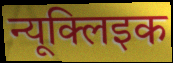
न्यूक्‍लिइक